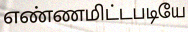
எண்ணமிட்டபடியே